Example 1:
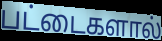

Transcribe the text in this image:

பட்டைகளால்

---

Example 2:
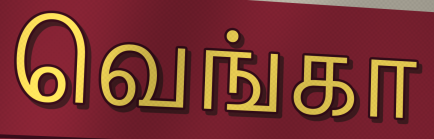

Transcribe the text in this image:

வெங்கா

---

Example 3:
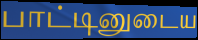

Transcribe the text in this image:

பாட்டினுடைய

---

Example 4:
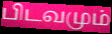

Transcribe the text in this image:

பிடவமும்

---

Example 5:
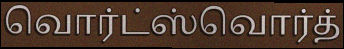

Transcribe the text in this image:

வொர்ட்ஸ்வொர்த்